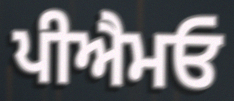
ਪੀਐਮਓ